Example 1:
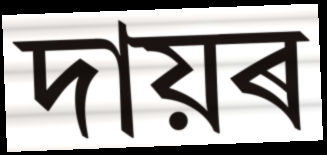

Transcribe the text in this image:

দায়ৰ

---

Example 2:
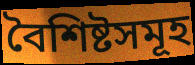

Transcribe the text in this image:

বৈশিষ্টসমূহ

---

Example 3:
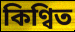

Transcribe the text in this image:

কিণ্বিত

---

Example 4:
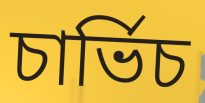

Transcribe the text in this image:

চাৰ্ভিচ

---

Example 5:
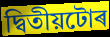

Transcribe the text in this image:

দ্বিতীয়টোৰ